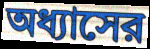
অধ্যাসের